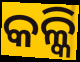
କଳ୍କି